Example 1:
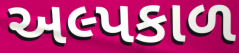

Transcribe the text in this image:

અલ્પકાળ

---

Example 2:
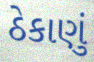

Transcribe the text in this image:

ઠેકાણું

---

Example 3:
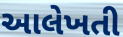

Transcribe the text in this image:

આલેખતી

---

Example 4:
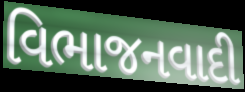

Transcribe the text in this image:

વિભાજનવાદી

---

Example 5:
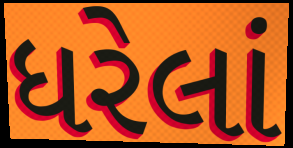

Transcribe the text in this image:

ધરેલાં